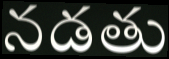
నడతు